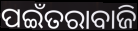
ପଇଁତରାବାଜି